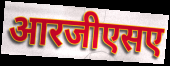
आरजीएसए